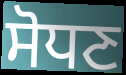
ਸੋਧਣ